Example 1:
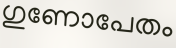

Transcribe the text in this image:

ഗുണോപേതം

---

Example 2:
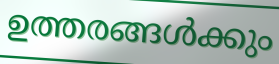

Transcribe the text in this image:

ഉത്തരങ്ങൾക്കും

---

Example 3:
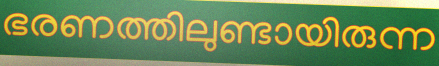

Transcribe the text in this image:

ഭരണത്തിലുണ്ടായിരുന്ന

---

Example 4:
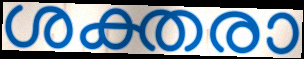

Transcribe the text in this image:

ശക്തരാ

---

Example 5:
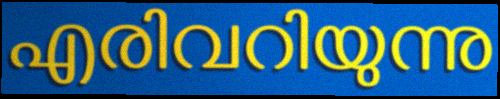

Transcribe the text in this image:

എരിവറിയുന്നു